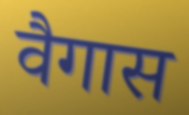
वैगास